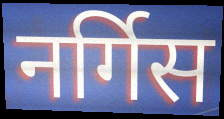
नर्गिस